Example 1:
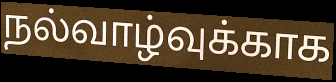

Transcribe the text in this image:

நல்வாழ்வுக்காக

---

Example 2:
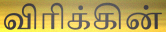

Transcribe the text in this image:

விரிக்கின்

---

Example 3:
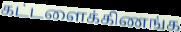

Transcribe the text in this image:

கட்டளைக்கிணங்க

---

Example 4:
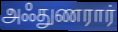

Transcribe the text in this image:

அஃதுணரார்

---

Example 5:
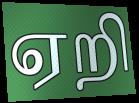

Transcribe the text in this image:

ஏறி